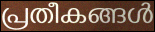
പ്രതീകങ്ങൾ